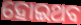
ହୋଇଥବ